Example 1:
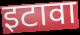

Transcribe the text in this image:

इटावा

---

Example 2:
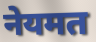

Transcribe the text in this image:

नेयमत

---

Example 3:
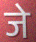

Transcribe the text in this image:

जे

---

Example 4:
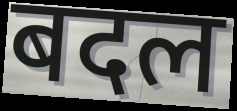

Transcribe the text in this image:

बदल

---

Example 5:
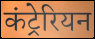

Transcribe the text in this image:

कंट्रेरियन